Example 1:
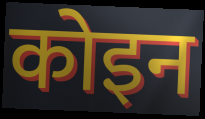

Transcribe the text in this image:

कोइन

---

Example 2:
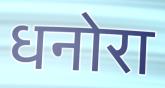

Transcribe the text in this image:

धनोरा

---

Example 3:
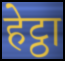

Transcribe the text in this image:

हेट्ठा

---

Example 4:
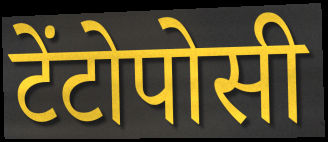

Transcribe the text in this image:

टेंटोपोसी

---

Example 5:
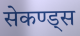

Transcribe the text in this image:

सेकण्ड्स